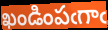
ఖండింపఁగాఁ